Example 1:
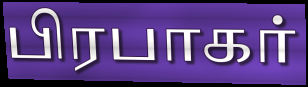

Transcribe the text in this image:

பிரபாகர்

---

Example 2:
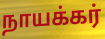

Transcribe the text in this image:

நாயக்கர்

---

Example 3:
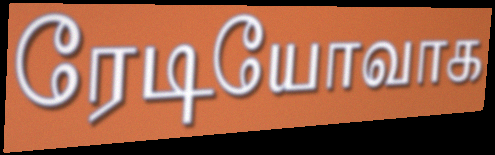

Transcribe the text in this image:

ரேடியோவாக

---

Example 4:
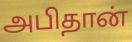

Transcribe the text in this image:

அபிதான்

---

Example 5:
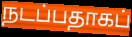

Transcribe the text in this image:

நடப்பதாகப்